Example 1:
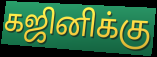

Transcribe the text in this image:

கஜினிக்கு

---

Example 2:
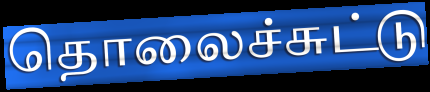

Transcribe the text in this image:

தொலைச்சுட்டு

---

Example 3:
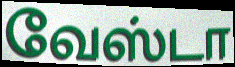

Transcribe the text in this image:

வேஸ்டா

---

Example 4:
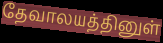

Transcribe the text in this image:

தேவாலயத்தினுள்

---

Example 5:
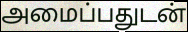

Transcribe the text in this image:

அமைப்பதுடன்